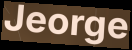
Jeorge